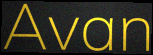
Avan